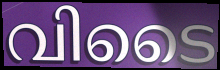
വിടൈ